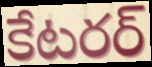
కేటరర్